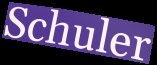
Schuler